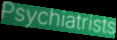
Psychiatrists